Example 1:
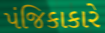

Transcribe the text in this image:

પંજિકાકારે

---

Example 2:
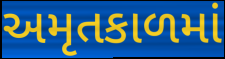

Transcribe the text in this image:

અમૃતકાળમાં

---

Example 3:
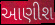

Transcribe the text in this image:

આણીશ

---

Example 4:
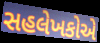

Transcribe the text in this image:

સહલેખકોએ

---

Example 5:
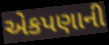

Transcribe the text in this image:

એકપણાની